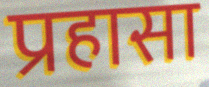
प्रहासा